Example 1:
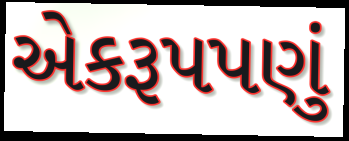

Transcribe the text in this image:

એકરૂપપણું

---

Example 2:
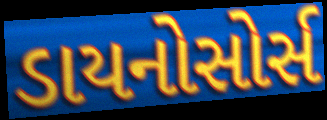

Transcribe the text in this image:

ડાયનોસોર્સ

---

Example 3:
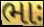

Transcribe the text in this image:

ભાઃ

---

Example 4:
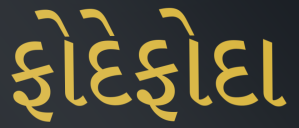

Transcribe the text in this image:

ફોદેફોદા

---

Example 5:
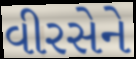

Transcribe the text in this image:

વીરસેને